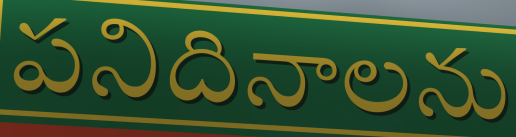
పనిదినాలను